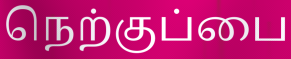
நெற்குப்பை